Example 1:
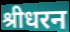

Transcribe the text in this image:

श्रीधरन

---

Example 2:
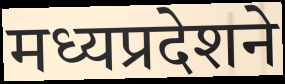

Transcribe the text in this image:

मध्यप्रदेशने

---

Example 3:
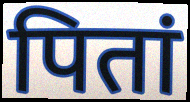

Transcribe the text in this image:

पितां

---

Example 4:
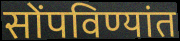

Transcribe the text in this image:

सोंपविण्यांत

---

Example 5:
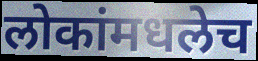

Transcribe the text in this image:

लोकांमधलेच